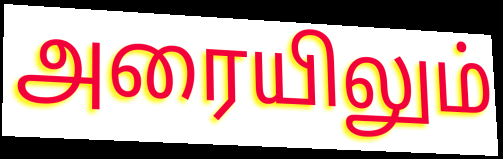
அரையிலும்